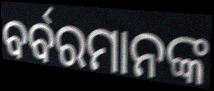
ବର୍ବରମାନଙ୍କ